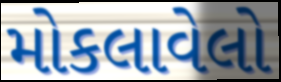
મોકલાવેલો